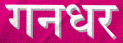
गनधर